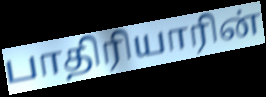
பாதிரியாரின்